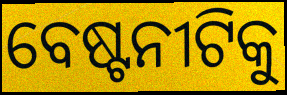
ବେଷ୍ଟନୀଟିକୁ